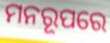
ମନରୂପରେ